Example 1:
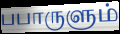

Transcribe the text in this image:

பபாருளும்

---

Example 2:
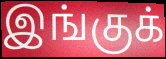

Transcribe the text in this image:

இங்குக்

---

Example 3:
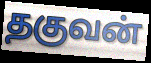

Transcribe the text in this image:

தகுவன்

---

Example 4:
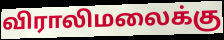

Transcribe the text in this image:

விராலிமலைக்கு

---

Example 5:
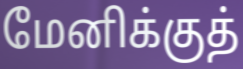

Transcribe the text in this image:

மேனிக்குத்